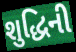
શુદ્ધિની